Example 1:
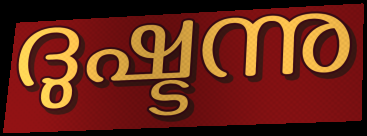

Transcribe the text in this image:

ദുഷ്ടന്നു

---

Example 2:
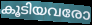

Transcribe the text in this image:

കൂടിയവരോ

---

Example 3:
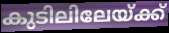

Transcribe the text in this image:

കുടിലിലേയ്ക്ക്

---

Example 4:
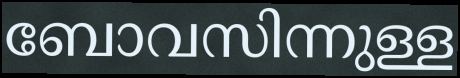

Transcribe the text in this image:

ബോവസിന്നുള്ള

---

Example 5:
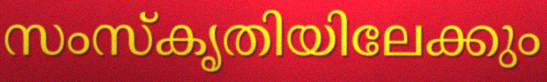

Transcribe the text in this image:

സംസ്കൃതിയിലേക്കും